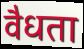
वैधता